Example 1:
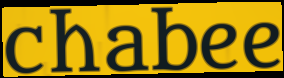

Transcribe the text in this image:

chabee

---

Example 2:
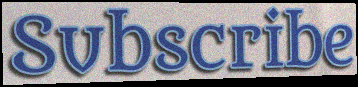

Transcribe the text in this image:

Subscribe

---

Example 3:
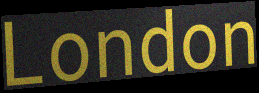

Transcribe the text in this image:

London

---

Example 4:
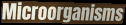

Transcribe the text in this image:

Microorganisms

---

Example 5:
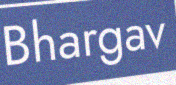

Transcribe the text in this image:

Bhargav